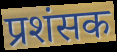
प्रशंसक